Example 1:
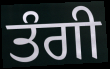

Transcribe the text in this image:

ਤੰਗੀ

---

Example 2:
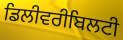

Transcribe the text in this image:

ਡਿਲੀਵਰੀਬਿਲਟੀ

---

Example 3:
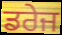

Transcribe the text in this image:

ਡਰੇਜ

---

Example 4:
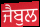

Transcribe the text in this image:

ਜੈਬੁਲ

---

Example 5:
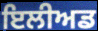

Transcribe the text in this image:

ਇਲੀਅਡ